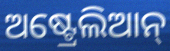
ଅଷ୍ଟ୍ରେଲିଆନ୍